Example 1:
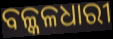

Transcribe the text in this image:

ବଳ୍କଳଧାରୀ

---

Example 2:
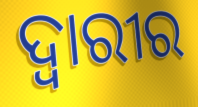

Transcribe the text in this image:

ଦ୍ୱାରୀର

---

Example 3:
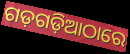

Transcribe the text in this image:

ଗଡ଼ଗଡ଼ିଆଠାରେ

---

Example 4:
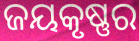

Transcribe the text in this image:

ଜୟକୃଷ୍ଣର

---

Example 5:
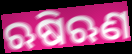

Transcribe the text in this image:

ଋଷିଋଣ